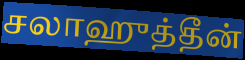
சலாஹுத்தீன்